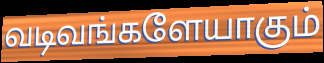
வடிவங்களேயாகும்